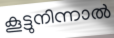
കൂട്ടുനിന്നാൽ